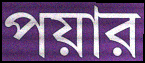
পয়ার